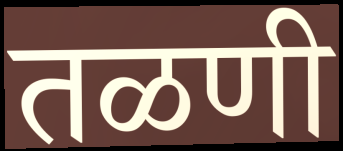
तळणी